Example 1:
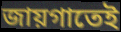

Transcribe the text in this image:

জায়গাতেই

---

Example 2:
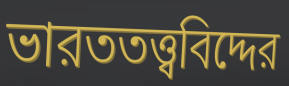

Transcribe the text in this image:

ভারততত্ত্ববিদ্দের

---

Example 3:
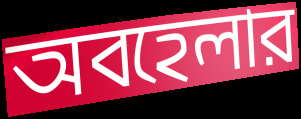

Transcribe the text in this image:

অবহেলার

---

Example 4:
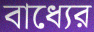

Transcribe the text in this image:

বাধ্যের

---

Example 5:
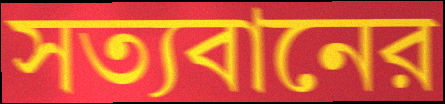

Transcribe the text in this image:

সত্যবানের